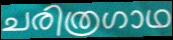
ചരിത്രഗാഥ